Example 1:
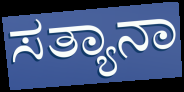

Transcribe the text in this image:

ಸತ್ಯಾನಾ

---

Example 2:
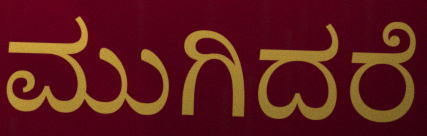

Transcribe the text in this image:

ಮುಗಿದರೆ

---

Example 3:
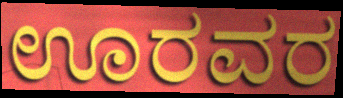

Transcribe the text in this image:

ಊರವರ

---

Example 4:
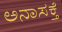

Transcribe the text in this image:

ಅನಾಸಕ್ತೆ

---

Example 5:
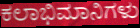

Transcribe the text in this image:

ಕಲಾಭಿಮಾನಿಗಳು